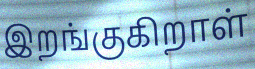
இறங்குகிறாள்